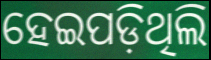
ହେଇପଡ଼ିଥିଲି